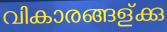
വികാരങ്ങള്ക്കു